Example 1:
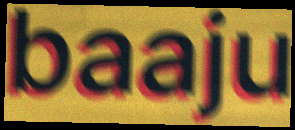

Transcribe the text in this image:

baaju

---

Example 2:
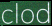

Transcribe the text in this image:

clod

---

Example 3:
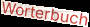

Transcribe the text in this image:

Worterbuch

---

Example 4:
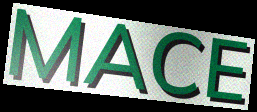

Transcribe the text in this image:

MACE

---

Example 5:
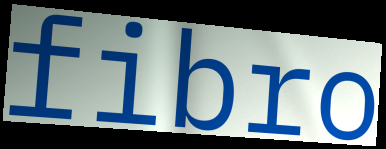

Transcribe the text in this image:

fibro